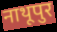
नाथूपुर